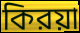
কিরয়া